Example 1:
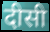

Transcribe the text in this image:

दीसी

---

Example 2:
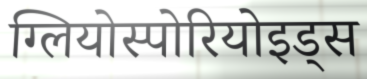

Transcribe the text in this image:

ग्लियोस्पोरियोइड्स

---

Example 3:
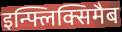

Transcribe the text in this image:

इन्फ्लिक्सिमैब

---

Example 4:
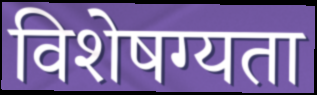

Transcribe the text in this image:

विशेषग्यता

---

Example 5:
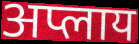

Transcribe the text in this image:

अप्लाय